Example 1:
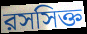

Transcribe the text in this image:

রসসিক্ত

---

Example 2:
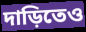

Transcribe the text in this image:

দাড়িতেও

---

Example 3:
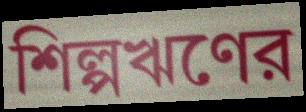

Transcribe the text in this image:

শিল্পঋণের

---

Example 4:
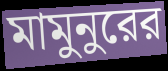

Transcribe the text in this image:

মামুনুরের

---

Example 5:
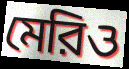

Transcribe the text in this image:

মেরিও